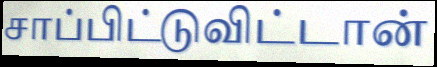
சாப்பிட்டுவிட்டான்